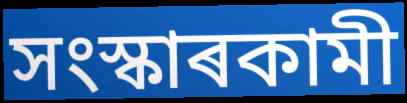
সংস্কাৰকামী